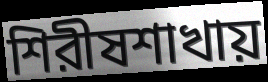
শিরীষশাখায়